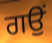
ਗਉਂ